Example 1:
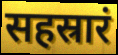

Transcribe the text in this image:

सहस्रारं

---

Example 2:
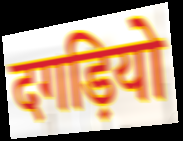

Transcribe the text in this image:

दगड़ियो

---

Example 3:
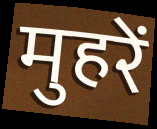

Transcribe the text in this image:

मुहरें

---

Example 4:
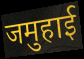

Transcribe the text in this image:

जमुहाई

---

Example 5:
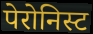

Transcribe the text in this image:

पेरोनिस्ट